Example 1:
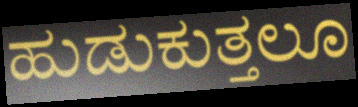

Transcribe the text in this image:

ಹುಡುಕುತ್ತಲೂ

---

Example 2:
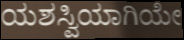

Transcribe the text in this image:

ಯಶಸ್ವಿಯಾಗಿಯೇ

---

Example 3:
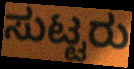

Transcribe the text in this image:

ಸುಟ್ಟರು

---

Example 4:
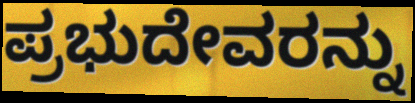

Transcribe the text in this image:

ಪ್ರಭುದೇವರನ್ನು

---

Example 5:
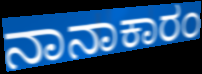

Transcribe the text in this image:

ನಾನಾಕಾರಂ